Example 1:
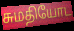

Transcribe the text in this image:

சுமதியோட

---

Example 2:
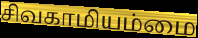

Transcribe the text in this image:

சிவகாமியம்மை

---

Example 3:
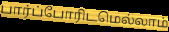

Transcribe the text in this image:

பார்ப்போரிடமெல்லாம்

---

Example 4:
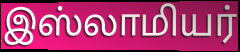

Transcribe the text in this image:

இஸ்லாமியர்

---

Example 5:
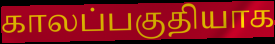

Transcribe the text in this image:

காலப்பகுதியாக